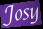
Josy